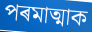
পৰমাত্মাক